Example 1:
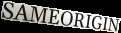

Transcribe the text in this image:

SAMEORIGIN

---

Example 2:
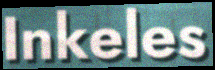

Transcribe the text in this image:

Inkeles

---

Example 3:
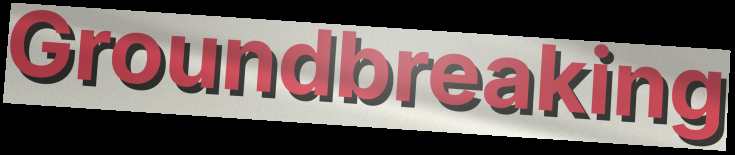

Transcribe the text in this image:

Groundbreaking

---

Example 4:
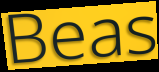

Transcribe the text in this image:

Beas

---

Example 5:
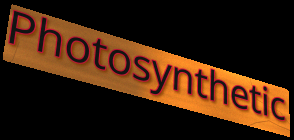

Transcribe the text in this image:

Photosynthetic